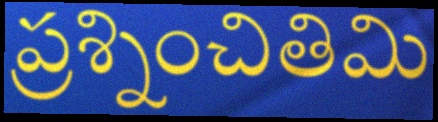
ప్రశ్నించితిమి